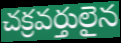
చక్రవర్తులైన